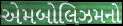
એમબોલિઝમનો